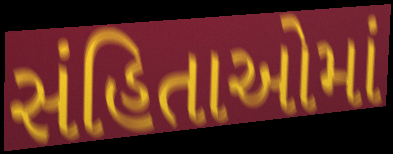
સંહિતાઓમાં